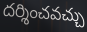
దర్శించవచ్చు